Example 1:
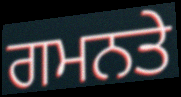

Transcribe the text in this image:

ਗਮਨਤੇ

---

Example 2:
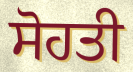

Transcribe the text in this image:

ਸੋਹਤੀ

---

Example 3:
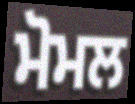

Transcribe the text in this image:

ਮੋਮਲ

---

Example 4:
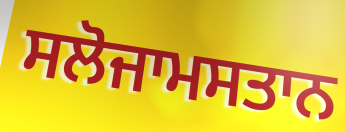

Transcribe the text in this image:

ਸਲੋਜਾਮਸਤਾਨ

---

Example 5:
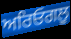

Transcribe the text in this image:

ਅਰਿਓਗਲੂ